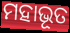
ମହାଭୂତ